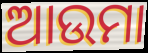
ଆଉମା